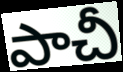
పాచీ